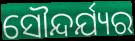
ସୌନ୍ଦର୍ଯ୍ୟର